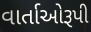
વાર્તાઓરૂપી